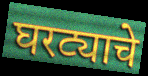
घरट्याचे